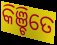
କିଞ୍ଚିତେ